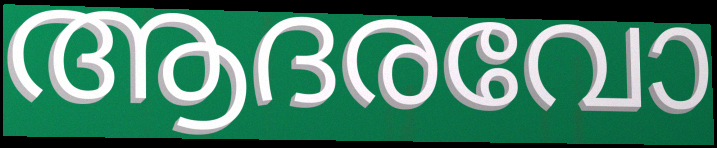
ആദരവോ